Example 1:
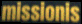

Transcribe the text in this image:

missionis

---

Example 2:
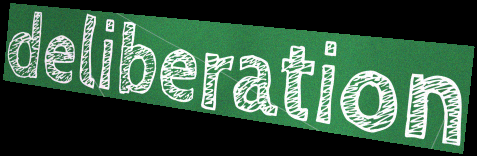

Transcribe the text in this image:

deliberation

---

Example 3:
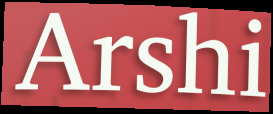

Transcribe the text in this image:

Arshi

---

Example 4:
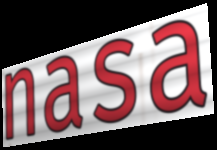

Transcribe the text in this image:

nasa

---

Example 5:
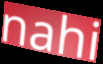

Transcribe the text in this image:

nahi